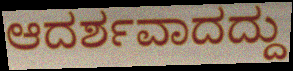
ಆದರ್ಶವಾದದ್ದು